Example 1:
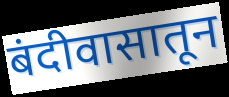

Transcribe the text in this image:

बंदीवासातून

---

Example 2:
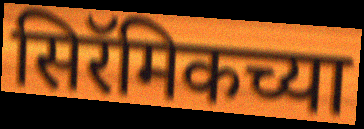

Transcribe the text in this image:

सिरॅमिकच्या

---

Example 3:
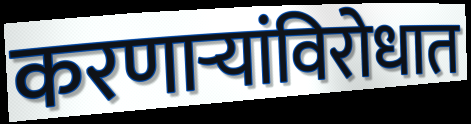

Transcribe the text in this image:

करणाऱ्यांविरोधात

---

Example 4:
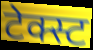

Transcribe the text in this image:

टेक्स्ट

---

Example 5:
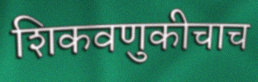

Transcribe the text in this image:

शिकवणुकीचाच